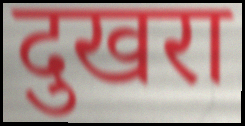
दुखरा